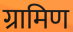
ग्रामिण